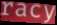
racy